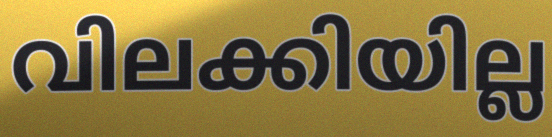
വിലക്കിയില്ല